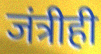
जंत्रीही